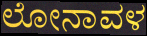
ಲೋನಾವಳ